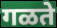
गळते